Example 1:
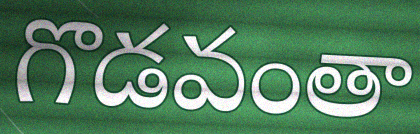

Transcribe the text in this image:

గొడవంతా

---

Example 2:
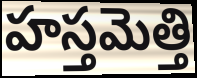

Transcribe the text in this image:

హస్తమెత్తి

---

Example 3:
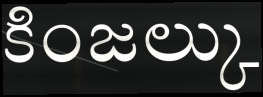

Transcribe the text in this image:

కింజల్కు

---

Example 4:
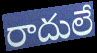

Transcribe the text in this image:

రాదులే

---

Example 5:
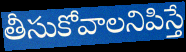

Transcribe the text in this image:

తీసుకోవాలనిపిస్తే